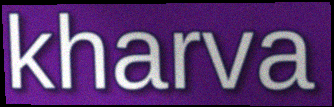
kharva